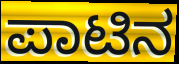
ಪಾಟಿನ